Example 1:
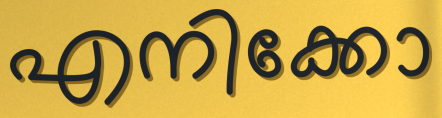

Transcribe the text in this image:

എനിക്കോ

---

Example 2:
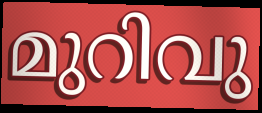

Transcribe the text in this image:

മുറിവു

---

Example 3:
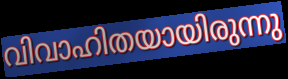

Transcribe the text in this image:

വിവാഹിതയായിരുന്നു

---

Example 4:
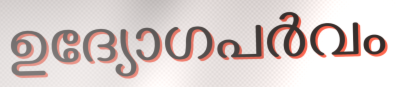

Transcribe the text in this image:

ഉദ്യോഗപർവം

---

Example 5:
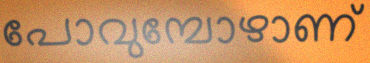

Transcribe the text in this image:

പോവുമ്പോഴാണ്